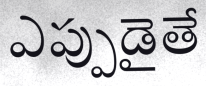
ఎప్పుడైతే